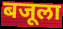
बजूला